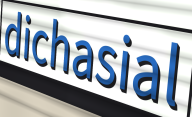
dichasial